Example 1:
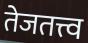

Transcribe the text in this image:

तेजतत्त्व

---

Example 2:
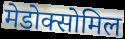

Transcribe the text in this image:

मेडोक्सोमिल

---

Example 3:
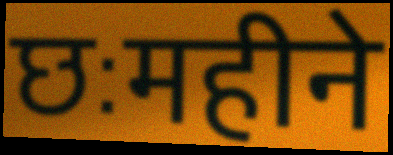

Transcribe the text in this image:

छःमहीने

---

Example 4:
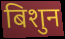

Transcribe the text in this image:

बिशुन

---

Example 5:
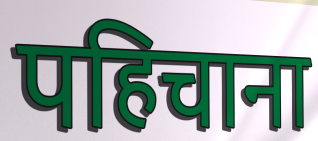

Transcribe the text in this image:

पहिचाना